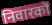
निवारकों